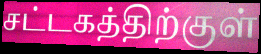
சட்டகத்திற்குள்